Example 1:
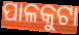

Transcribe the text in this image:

ପାଳକୁଟା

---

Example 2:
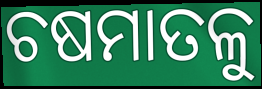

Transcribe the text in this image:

ଚଷମାତଳୁ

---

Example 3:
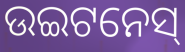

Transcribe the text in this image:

ଉଇଟନେସ୍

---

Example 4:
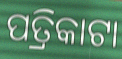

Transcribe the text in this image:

ପତ୍ରିକାଟା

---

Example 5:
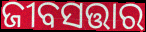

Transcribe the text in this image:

ଜୀବସତ୍ତାର